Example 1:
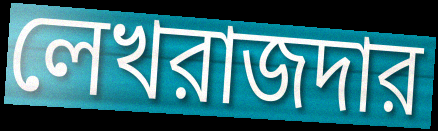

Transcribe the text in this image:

লেখরাজদার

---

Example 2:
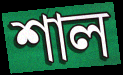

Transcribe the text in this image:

শাল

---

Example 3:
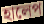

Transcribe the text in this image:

হালেপ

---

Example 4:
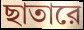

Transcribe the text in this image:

ছাতারে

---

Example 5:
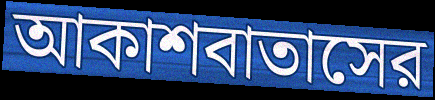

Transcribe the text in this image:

আকাশবাতাসের